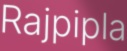
Rajpipla